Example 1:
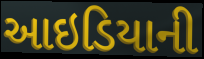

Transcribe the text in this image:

આઇડિયાની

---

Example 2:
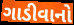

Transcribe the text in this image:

ગાડીવાનો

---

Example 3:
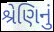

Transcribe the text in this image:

શ્રેણિનું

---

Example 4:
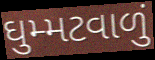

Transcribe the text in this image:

ઘુમ્મટવાળું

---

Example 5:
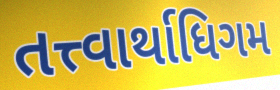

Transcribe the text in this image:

તત્ત્વાર્થાધિગમ